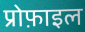
प्रोफ़ाइल